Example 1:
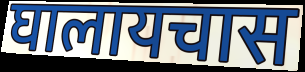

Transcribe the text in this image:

घालायचास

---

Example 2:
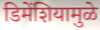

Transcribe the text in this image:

डिमेंशियामुळे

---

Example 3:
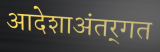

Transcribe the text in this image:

आदेशाअंतर्गत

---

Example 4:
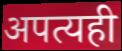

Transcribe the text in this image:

अपत्यही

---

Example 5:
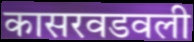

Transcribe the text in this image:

कासरवडवली